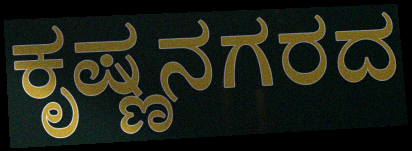
ಕೃಷ್ಣನಗರದ